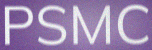
PSMC